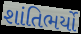
શાંતિભર્યો